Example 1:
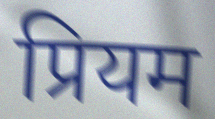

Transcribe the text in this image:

प्रियम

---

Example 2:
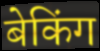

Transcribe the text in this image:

बेकिंग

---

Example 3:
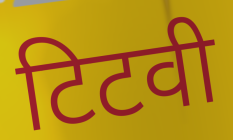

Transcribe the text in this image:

टिटवी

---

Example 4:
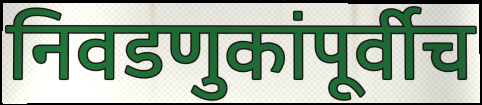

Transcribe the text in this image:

निवडणुकांपूर्वीच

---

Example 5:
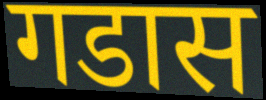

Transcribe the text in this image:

गडास